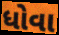
ધોવા